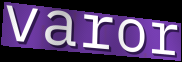
varor